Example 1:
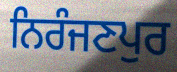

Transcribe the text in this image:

ਨਿਰੰਜਣਪੁਰ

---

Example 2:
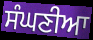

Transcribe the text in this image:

ਸੰਘਣੀਆ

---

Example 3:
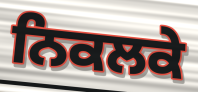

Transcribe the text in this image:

ਨਿਕਲਕੇ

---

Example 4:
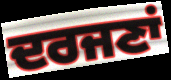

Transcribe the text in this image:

ਦਰਜਣਾਂ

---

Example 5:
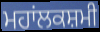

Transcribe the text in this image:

ਮਹਾਂਲਕਸ਼ਮੀ